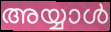
അയ്യാൾ